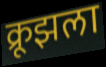
क्रूझला